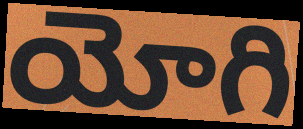
యోగి